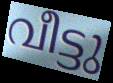
വീട്ടു